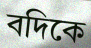
বদিকে